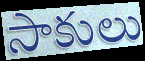
సాకులు